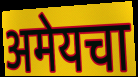
अमेयचा